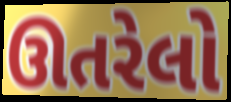
ઊતરેલો